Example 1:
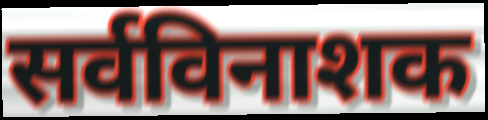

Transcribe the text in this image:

सर्वविनाशक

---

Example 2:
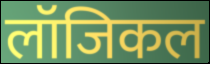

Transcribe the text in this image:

लॉजिकल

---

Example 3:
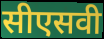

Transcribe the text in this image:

सीएसवी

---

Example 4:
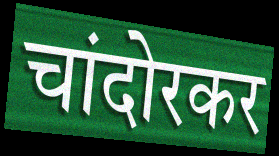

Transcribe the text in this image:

चांदोरकर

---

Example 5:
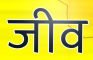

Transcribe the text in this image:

जीव